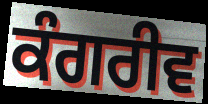
ਕੰਗਰੀਵ